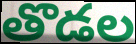
తొడల